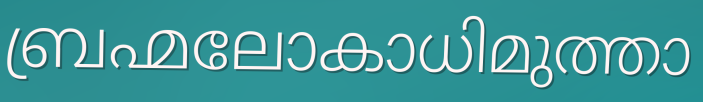
ബ്രഹ്മലോകാധിമുത്താ